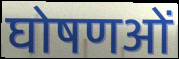
घोषणओं